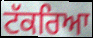
ਟੱਕਰਿਆ